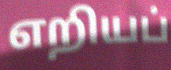
எறியப்